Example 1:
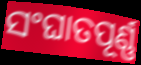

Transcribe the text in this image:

ସଂଘାତପୂର୍ଣ୍ଣ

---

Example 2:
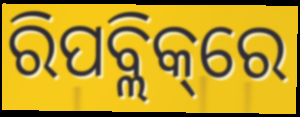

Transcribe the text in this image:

ରିପବ୍ଲିକ୍‌ରେ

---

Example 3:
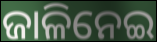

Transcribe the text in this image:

ଜାଳିନେଇ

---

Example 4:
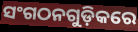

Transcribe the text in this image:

ସଂଗଠନଗୁଡ଼ିକରେ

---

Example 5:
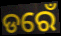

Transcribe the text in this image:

ଡରେଁ